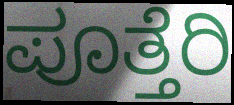
ಪೂತ್ತೆರಿ